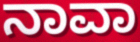
ನಾವಾ